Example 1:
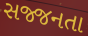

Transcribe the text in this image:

સજ્જનતા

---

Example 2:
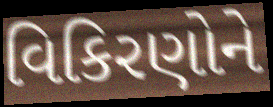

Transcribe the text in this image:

વિકિરણોને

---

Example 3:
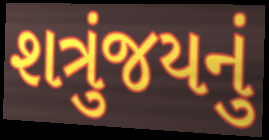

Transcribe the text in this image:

શત્રુંજયનું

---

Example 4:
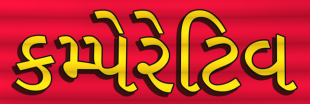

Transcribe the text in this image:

કમ્પેરેટિવ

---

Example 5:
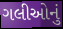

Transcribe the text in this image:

ગલીઓનું